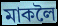
মাকলৈ